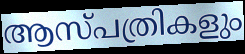
ആസ്പത്രികളും